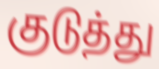
குடுத்து